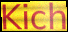
Kich